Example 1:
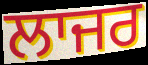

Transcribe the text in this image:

ਲਾਜਰ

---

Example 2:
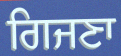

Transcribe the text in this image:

ਗਿਜਣਾ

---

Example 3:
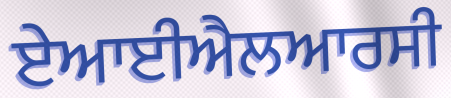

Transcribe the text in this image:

ਏਆਈਐਲਆਰਸੀ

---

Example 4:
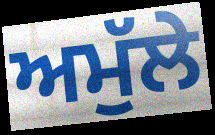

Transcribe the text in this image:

ਅਮੁੱਲੇ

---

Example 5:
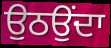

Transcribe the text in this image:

ਉਠਉਂਦਾ